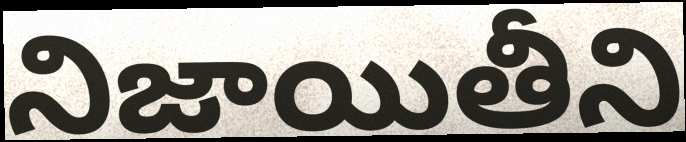
నిజాయితీని